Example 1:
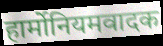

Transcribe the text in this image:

हार्मोनियमवादक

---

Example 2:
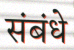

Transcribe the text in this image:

संबंधे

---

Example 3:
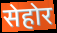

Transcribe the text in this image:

सेहोर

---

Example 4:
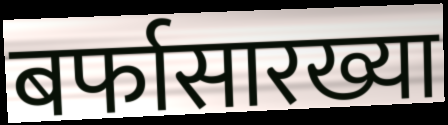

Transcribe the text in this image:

बर्फासारख्या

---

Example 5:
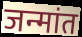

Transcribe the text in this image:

जन्मांत